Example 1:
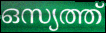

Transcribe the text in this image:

ഒസ്യത്ത്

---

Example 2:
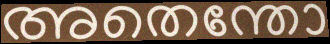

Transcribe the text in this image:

അതെന്തോ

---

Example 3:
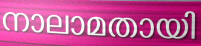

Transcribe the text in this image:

നാലാമതായി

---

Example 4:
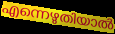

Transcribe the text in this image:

എന്നെഴുതിയാൽ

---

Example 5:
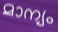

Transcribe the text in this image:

മാന്യം